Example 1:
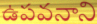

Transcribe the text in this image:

ఉపవనాని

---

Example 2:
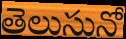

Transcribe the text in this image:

తెలుసునో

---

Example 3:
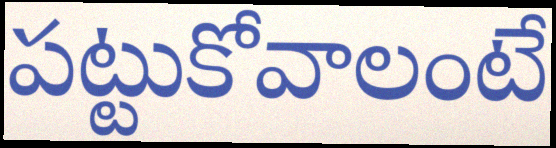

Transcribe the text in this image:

పట్టుకోవాలంటే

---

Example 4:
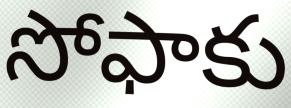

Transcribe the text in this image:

సోఫాకు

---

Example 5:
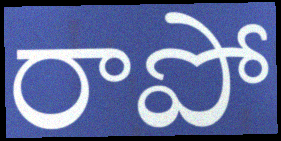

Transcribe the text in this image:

రాపో